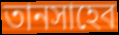
তানসাহেব